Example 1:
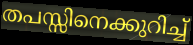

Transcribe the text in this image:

തപസ്സിനെക്കുറിച്ച്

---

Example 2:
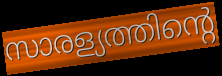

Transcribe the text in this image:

സാരള്യത്തിന്റെ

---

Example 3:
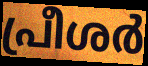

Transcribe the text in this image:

പ്രീശർ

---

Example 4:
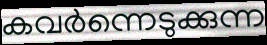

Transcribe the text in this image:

കവർന്നെടുക്കുന്ന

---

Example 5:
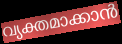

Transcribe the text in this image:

വ്യക്തമാക്കാൻ